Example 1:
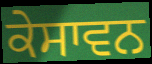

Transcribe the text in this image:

ਕੇਸਾਵਨ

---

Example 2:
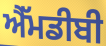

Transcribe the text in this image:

ਐੱਮਡੀਬੀ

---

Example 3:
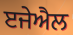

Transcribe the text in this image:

ੲਜੇਐਲ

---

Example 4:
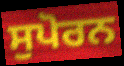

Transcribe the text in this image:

ਸੁਪੋਰਨ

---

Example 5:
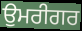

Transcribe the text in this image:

ਉਮਰੀਗਰ